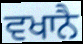
ਵਖਾਨੈ